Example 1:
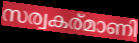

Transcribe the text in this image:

സര്വകര്മാണി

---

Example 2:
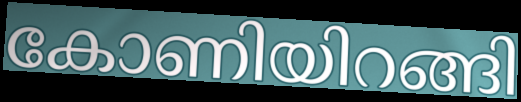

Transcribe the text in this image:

കോണിയിറങ്ങി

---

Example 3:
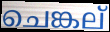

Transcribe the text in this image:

ചെങ്കല്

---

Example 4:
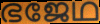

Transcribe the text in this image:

ഭജേഥ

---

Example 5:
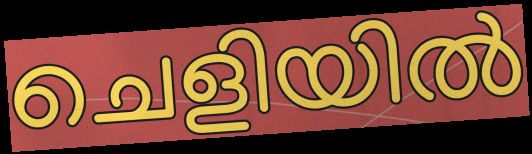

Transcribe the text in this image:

ചെളിയിൽ